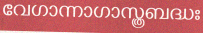
വേഗാന്നാഗാസ്ത്രബദ്ധഃ